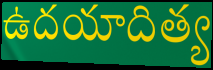
ఉదయాదిత్య